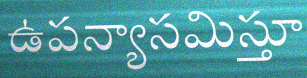
ఉపన్యాసమిస్తూ